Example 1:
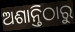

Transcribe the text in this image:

ଅଶାନ୍ତିଠାରୁ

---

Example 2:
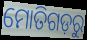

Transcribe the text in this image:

ମୋତିଗଡ଼ରୁ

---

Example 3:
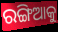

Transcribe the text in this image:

ରଙ୍ଗିଆକୁ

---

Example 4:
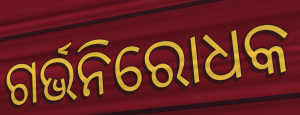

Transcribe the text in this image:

ଗର୍ଭନିରୋଧକ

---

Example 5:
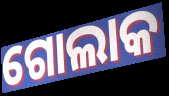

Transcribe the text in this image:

ଗୋଲାକ